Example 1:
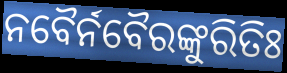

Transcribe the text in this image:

ନବୈର୍ନବୈରଙ୍କୁରିତିଃ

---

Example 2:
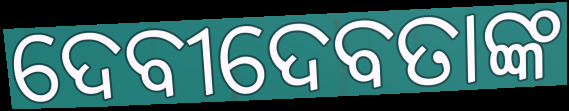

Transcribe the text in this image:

ଦେବୀଦେବତାଙ୍କ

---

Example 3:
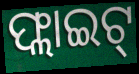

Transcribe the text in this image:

ଫ୍ଲାଇଟ୍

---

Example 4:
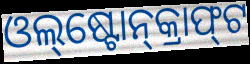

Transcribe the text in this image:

ଓଲ୍‌ଷ୍ଟୋନ୍‌କ୍ରାଫ୍‌ଟ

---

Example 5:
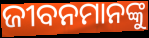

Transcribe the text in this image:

ଜୀବନମାନଙ୍କୁ